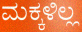
ಮಕ್ಕಳಿಲ್ಲ